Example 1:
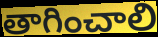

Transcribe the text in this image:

తాగించాలి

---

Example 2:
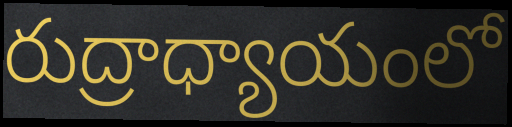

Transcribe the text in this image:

రుద్రాధ్యాయంలో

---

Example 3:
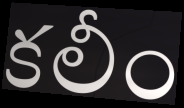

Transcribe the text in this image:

కలీం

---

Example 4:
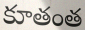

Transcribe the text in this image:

కూతంత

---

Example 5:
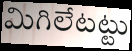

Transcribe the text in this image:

మిగిలేటట్టు